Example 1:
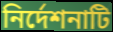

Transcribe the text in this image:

নির্দেশনাটি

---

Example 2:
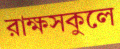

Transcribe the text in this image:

রাক্ষসকুলে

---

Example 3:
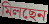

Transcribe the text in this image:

মিলছেন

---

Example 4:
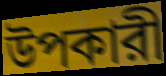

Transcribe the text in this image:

উপকারী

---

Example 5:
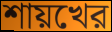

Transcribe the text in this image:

শায়খের